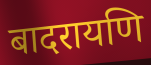
बादरायणि